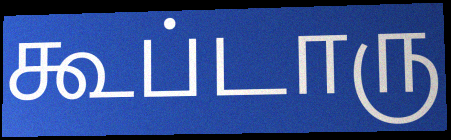
கூப்டாரு